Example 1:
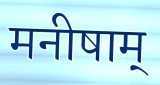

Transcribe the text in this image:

मनीषाम्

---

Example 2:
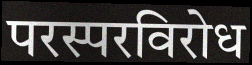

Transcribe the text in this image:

परस्परविरोध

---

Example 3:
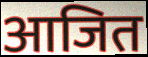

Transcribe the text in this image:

आजित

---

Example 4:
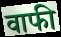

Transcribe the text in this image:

वाफी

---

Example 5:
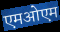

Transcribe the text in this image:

एमओएम